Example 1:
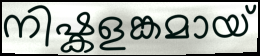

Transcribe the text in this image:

നിഷ്കളങ്കമായ്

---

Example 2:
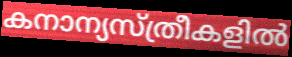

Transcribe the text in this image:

കനാന്യസ്ത്രീകളിൽ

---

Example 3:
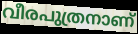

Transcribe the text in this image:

വീരപുത്രനാണ്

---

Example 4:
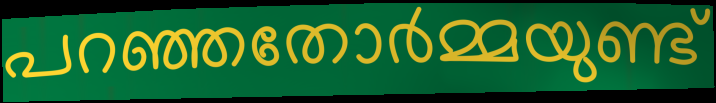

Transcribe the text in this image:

പറഞ്ഞതോർമ്മയുണ്ട്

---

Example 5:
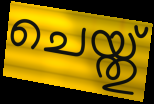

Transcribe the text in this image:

ചെയ്തു്